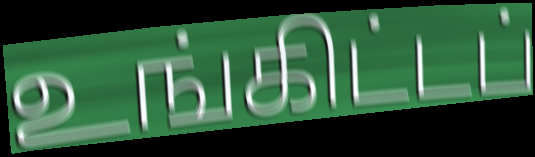
உங்கிட்டப்